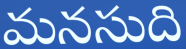
మనసుది